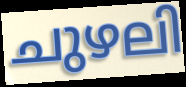
ചുഴലി